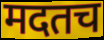
मदतच